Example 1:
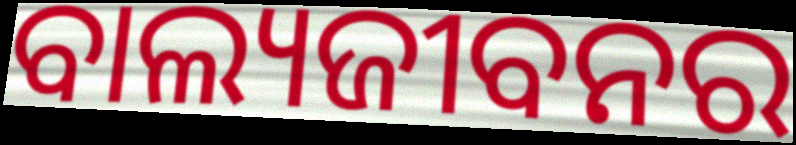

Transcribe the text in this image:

ବାଲ୍ୟଜୀବନର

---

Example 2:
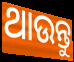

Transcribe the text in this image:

ଥାଉନ୍ତୁ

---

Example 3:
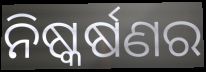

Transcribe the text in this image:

ନିଷ୍କର୍ଷଣର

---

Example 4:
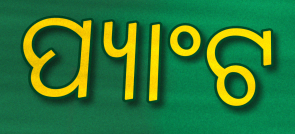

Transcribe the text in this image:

ପ୍ୟାଂଟ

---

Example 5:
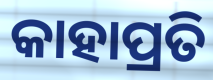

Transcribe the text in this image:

କାହାପ୍ରତି